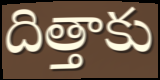
దిత్తాకు